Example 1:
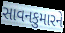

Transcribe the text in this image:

સાવનકુમારને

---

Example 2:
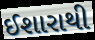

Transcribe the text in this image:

ઈશારાથી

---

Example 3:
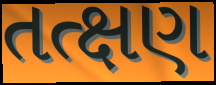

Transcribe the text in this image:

તત્ક્ષણ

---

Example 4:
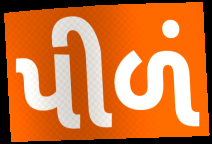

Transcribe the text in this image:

પીળં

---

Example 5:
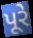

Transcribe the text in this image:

પૂરે